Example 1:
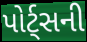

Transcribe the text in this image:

પોર્ટ્સની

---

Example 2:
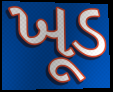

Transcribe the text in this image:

ખૂડ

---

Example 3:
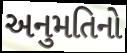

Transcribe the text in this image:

અનુમતિનો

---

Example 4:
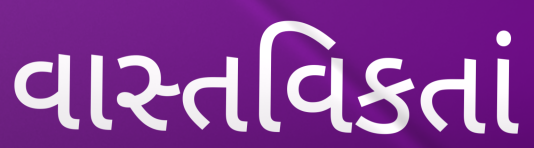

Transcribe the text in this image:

વાસ્તવિકતાં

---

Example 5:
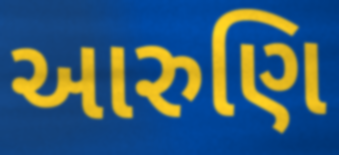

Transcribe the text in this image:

આરુણિ